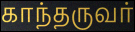
காந்தருவர்